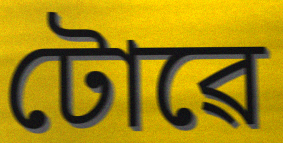
টোৱে